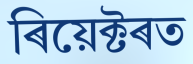
ৰিয়েক্টৰত